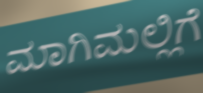
ಮಾಗಿಮಲ್ಲಿಗೆ